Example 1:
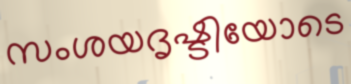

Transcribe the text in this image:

സംശയദൃഷ്ടിയോടെ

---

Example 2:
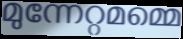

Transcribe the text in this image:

മുന്നേറ്റമമ്മെ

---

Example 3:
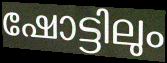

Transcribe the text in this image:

ഷോട്ടിലും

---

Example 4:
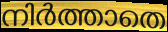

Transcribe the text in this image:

നിർത്താതെ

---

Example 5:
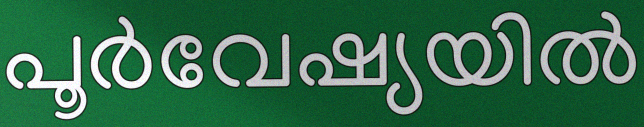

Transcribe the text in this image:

പൂർവേഷ്യയിൽ